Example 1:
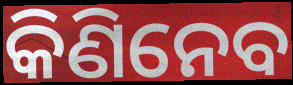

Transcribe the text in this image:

କିଣିନେବ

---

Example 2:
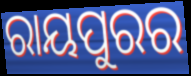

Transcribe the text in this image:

ରାୟପୁରର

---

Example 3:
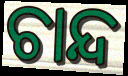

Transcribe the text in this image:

ଚାନ୍ଦ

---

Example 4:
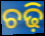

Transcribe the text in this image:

ଚଢ଼ି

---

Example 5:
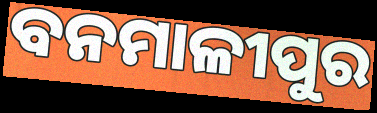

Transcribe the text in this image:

ବନମାଳୀପୁର